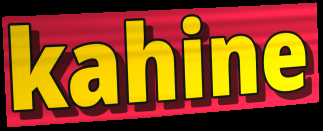
kahine